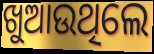
ଖୁଆଉଥିଲେ